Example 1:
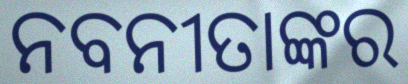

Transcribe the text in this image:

ନବନୀତାଙ୍କର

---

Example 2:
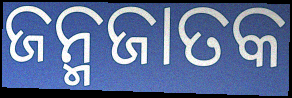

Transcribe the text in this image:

ଜନ୍ମଜାତକ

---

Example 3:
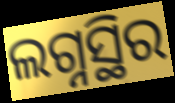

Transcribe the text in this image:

ଲଗ୍ନସ୍ଥିର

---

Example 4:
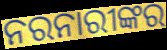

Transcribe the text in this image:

ନରନାରୀଙ୍କର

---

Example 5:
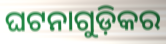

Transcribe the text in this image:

ଘଟନାଗୁଡ଼ିକର